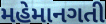
મહેમાનગતી